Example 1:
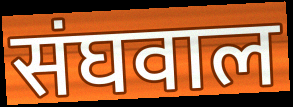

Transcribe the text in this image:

संघवाल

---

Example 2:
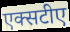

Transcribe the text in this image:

एक्सटीए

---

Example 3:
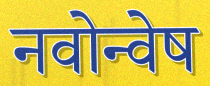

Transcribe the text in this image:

नवोन्वेष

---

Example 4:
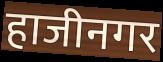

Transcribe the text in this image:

हाजीनगर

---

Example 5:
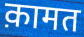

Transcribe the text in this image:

क़ामत